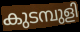
കുടമ്പുളി